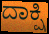
ದಾಕ್ಷಿ